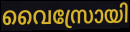
വൈസ്രോയി